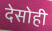
देसोही